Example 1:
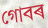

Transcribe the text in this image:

গোবৰ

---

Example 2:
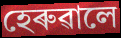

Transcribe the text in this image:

হেৰুৱালে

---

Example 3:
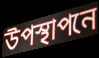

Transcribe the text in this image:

উপস্থাপনে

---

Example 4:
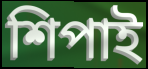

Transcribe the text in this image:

শিপাই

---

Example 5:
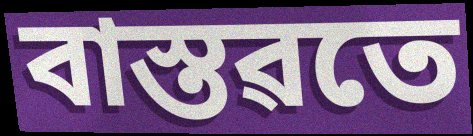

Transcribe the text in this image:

বাস্তৱতে